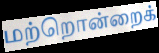
மற்றொன்றைக்